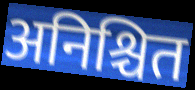
अनिश्चित